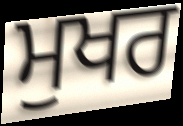
ਮੁਖਰ